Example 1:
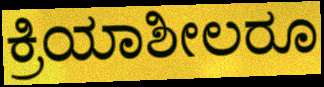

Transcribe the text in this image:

ಕ್ರಿಯಾಶೀಲರೂ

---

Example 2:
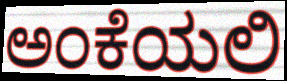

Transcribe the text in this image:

ಅಂಕೆಯಲಿ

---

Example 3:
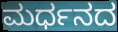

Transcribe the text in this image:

ಮರ್ಧನದ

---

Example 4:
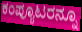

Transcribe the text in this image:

ಕಂಪ್ಯೂಟರನ್ನೂ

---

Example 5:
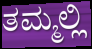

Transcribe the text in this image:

ತಮ್ಮಲ್ಲಿ